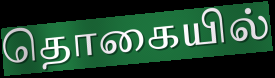
தொகையில்